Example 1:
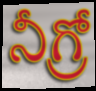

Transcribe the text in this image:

నీగ్రో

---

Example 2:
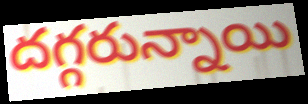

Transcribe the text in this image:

దగ్గరున్నాయి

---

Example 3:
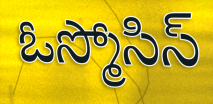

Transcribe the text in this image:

ఓస్మోసిస్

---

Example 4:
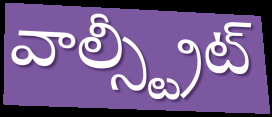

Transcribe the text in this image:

వాల్స్ట్రీట్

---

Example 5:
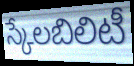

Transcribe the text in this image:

స్కేలబిలిటీ